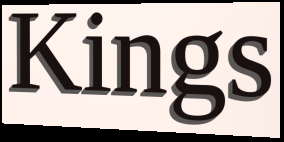
Kings